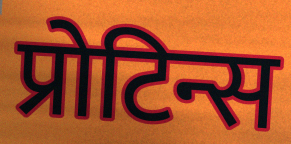
प्रोटिन्स